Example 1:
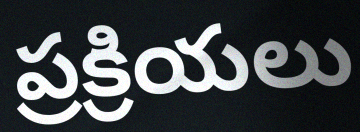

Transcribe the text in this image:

ప్రక్రియలు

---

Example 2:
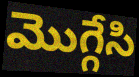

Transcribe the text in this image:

మొగ్గేసి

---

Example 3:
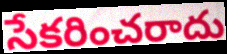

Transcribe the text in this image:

సేకరించరాదు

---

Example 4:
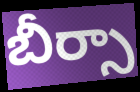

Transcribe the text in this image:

బీర్సా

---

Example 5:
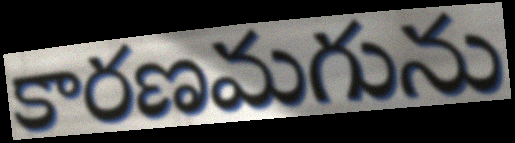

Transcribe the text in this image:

కారణమగును